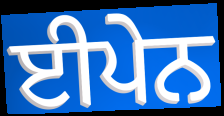
ਈਪੇਨ